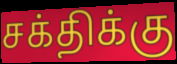
சக்திக்கு